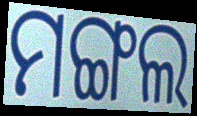
ମଙ୍ଗଲ